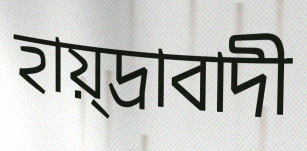
হায়্দ্রাবাদী